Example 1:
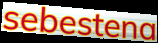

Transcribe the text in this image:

sebestena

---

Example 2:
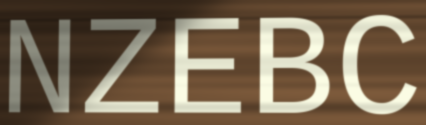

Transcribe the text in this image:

NZEBC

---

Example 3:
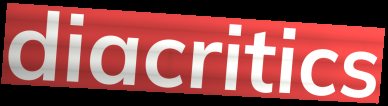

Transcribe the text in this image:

diacritics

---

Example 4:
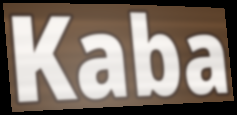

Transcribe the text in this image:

Kaba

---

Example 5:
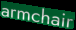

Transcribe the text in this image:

armchair